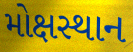
મોક્ષસ્થાન